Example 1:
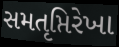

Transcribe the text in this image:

સમતૃપ્તિરેખા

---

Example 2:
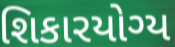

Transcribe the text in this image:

શિકારયોગ્ય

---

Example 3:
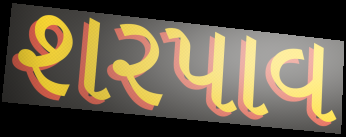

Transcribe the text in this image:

શરપાવ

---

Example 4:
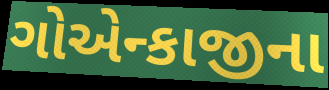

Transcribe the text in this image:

ગોએન્કાજીના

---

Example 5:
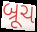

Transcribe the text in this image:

બ્રૂચ